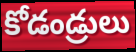
కోడండ్రులు